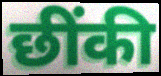
छींकी